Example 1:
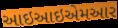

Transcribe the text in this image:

આઇઆઇએમઆર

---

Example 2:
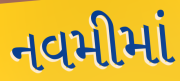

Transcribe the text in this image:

નવમીમાં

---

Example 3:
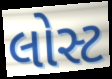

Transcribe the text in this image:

લોસ્ટ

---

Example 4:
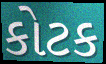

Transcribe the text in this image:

કોટક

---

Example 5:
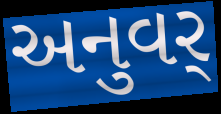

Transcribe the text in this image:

અનુવર્